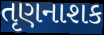
તૃણનાશક